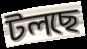
টলছে